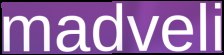
madveli